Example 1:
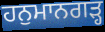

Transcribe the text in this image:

ਹਨੁਮਾਨਗੜ੍ਹ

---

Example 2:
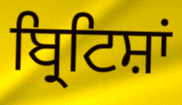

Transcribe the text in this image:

ਬ੍ਰਿਟਿਸ਼ਾਂ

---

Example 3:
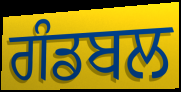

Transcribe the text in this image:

ਗੰਡਬਲ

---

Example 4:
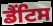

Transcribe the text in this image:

ਡੈਂਟਿਸ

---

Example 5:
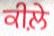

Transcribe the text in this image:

ਕੀਲ਼ੇ